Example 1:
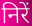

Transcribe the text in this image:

निरें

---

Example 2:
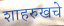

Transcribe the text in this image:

शाहरुखचे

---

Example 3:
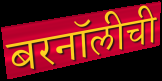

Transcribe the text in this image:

बरनॉलीची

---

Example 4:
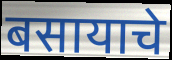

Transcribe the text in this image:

बसायाचे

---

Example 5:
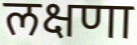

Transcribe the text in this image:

लक्षणा